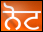
ਨੋਟ